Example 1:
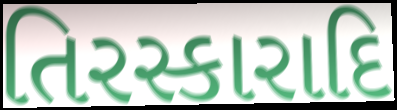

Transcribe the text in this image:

તિરસ્કારાદિ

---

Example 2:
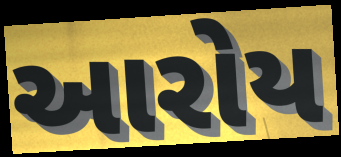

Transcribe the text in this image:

આરોય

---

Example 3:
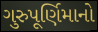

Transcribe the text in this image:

ગુરુપૂર્ણિમાનો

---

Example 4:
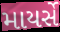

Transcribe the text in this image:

માયર્સે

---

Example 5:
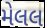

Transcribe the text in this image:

મેલલ